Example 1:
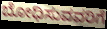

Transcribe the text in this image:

ಬೋಧಿಸುವವರಿಗೆ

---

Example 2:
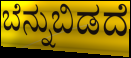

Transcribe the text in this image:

ಬೆನ್ನುಬಿಡದೆ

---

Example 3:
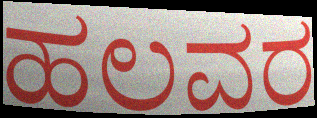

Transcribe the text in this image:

ಹಲವರ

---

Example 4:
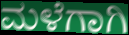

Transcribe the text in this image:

ಮಳೆಗಾಗಿ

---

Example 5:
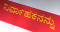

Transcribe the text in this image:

ನಿರ್ವಾಹಕನನ್ನು